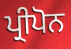
ਪ੍ਰੀਪੋਨ